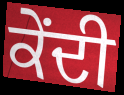
ਕੇਂਦੀ